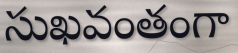
సుఖవంతంగా